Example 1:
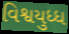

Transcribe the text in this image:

વિશ્વયુધ્ધ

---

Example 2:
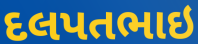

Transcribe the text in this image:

દલપતભાઇ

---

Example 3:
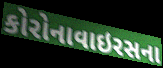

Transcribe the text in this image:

કોરોનાવાઇરસના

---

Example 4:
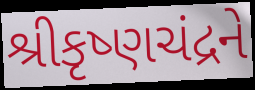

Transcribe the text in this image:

શ્રીકૃષ્ણચંદ્રને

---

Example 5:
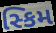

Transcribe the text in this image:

સ્કિમ